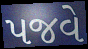
પજવે